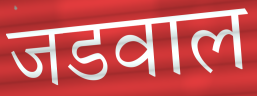
जडवाल